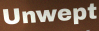
Unwept